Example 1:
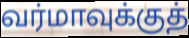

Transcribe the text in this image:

வர்மாவுக்குத்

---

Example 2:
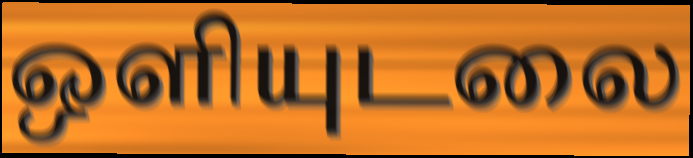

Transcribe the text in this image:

ஒளியுடலை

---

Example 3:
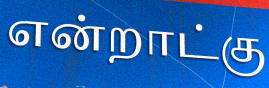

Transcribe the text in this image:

என்றாட்கு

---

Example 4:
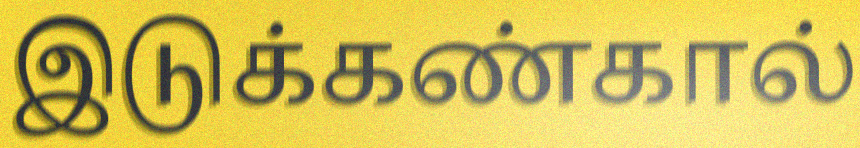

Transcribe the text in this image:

இடுக்கண்கால்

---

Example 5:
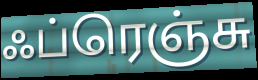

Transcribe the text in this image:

ஃப்ரெஞ்சு